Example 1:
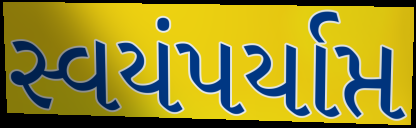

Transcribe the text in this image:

સ્વયંપર્યાપ્ત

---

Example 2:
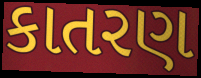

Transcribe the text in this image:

કાતરણ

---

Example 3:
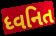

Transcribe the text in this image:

ધ્વનિત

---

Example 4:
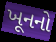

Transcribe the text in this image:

ખૂનનો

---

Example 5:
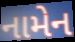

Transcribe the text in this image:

નામેન